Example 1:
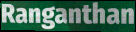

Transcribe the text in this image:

Ranganthan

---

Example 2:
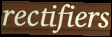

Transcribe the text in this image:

rectifiers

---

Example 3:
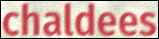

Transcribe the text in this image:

chaldees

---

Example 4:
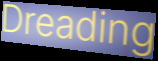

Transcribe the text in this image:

Dreading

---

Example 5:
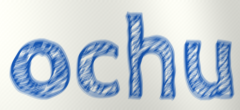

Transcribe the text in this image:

ochu